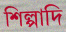
শিল্পাদি